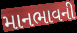
માનભાવની